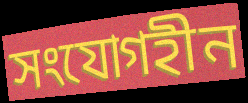
সংযোগহীন